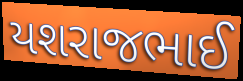
યશરાજભાઈ